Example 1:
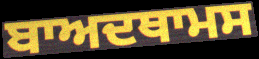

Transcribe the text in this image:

ਬਾਅਦਥਾਮਸ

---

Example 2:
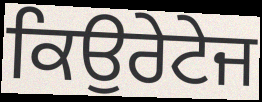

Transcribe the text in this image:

ਕਿਉਰੇਟੇਜ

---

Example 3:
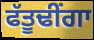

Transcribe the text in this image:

ਫੱਤੂਢੀਂਗਾ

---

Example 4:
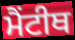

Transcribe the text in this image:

ਮੈਂਟੀਥ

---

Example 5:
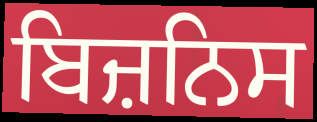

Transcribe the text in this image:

ਬਿਜ਼ਨਿਸ